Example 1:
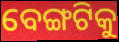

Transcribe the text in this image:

ବେଙ୍ଗଟିକୁ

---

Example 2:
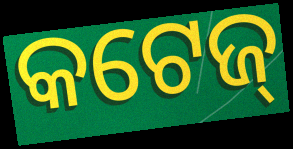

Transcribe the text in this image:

କଟେଜ୍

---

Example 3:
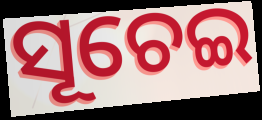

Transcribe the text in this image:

ସୂଚେଇ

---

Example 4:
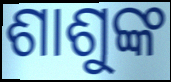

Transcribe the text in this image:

ଶାଶୁଙ୍କ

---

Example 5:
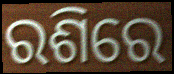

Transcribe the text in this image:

ରଶିରେ